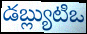
డబ్ల్యుటిఒ